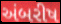
અંબરીષ